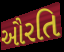
ઔરતિ